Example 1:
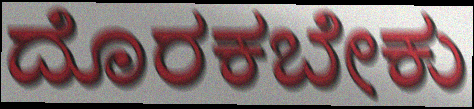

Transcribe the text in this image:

ದೊರಕಬೇಕು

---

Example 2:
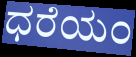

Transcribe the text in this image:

ಧರೆಯಂ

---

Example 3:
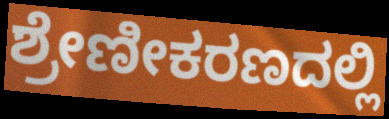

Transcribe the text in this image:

ಶ್ರೇಣೀಕರಣದಲ್ಲಿ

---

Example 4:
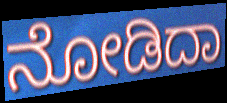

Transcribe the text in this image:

ನೋಡಿದಾ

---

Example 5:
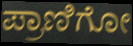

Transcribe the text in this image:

ಪ್ರಾಣಿಗೋ